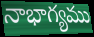
నాభాగ్యము